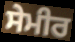
ਸੇਮੀਰ